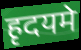
हृदयमे